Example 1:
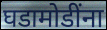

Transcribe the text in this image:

घडामोडींना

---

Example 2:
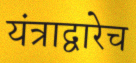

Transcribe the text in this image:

यंत्राद्वारेच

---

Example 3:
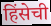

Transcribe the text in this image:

हिंसेची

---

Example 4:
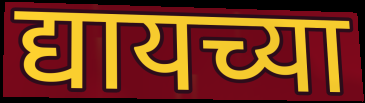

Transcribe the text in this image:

द्यायच्या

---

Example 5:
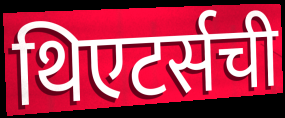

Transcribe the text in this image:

थिएटर्सची